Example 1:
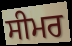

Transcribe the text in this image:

ਸੀਮਰ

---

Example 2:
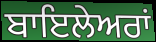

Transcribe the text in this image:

ਬਾਇਲੇਅਰਾਂ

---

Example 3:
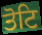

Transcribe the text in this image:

ਤੋਟਿ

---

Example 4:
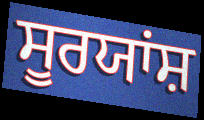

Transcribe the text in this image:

ਸੂਰਯਾਂਸ਼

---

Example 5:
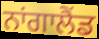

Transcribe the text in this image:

ਨਾਂਗਾਲੈਂਡ